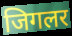
जिगलर